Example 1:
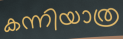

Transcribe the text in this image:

കന്നിയാത്ര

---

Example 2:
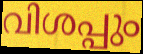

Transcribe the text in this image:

വിശപ്പും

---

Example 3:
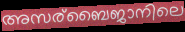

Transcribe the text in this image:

അസര്ബൈജാനിലെ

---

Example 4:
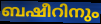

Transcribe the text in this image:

ബഷീറിനും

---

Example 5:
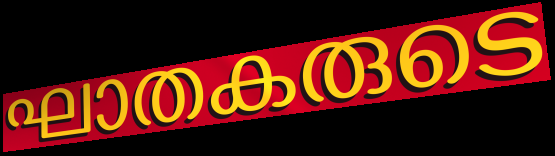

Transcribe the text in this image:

ഘാതകരുടെ